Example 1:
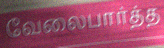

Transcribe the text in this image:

வேலைபார்த்த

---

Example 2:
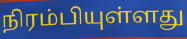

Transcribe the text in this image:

நிரம்பியுள்ளது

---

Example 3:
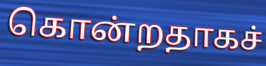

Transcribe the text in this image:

கொன்றதாகச்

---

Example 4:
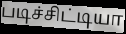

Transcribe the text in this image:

படிச்சிட்டியா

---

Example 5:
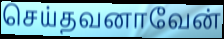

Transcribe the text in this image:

செய்தவனாவேன்